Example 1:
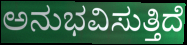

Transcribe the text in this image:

ಅನುಭವಿಸುತ್ತಿದೆ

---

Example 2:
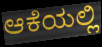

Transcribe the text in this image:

ಆಕೆಯಲ್ಲಿ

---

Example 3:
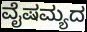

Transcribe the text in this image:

ವೈಷಮ್ಯದ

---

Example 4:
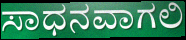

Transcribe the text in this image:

ಸಾಧನವಾಗಲಿ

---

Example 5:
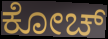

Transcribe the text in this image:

ಕೋಚ್